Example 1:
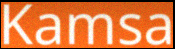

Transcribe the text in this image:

Kamsa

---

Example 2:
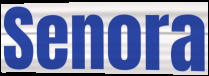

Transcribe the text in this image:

Senora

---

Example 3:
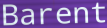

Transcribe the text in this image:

Barent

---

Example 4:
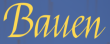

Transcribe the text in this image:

Bauen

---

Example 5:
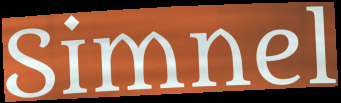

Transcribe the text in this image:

Simnel